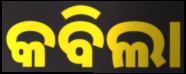
କବିଲା